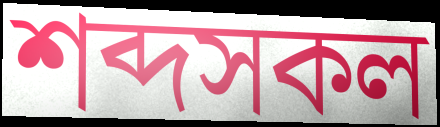
শব্দসকল